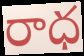
రాధ